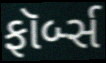
ફૉર્બ્સ